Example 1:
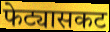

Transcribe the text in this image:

फेट्यासकट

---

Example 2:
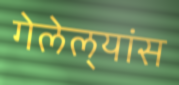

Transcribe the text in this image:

गेलेल्यांस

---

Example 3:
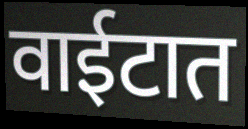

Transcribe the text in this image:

वाईटात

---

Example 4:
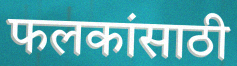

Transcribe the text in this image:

फलकांसाठी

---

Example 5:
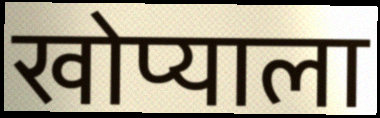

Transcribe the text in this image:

खोप्याला